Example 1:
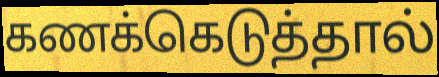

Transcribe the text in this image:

கணக்கெடுத்தால்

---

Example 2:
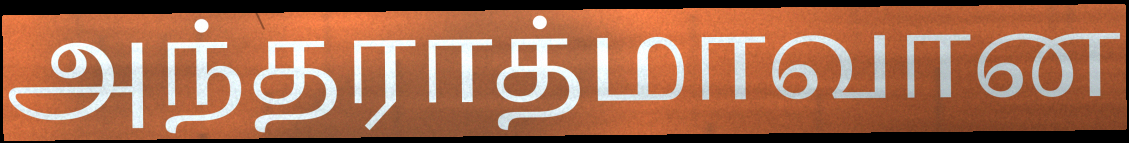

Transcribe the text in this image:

அந்தராத்மாவான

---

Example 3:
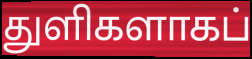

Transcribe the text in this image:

துளிகளாகப்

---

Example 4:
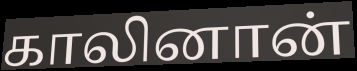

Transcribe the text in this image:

காலினான்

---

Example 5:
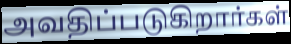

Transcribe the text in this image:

அவதிப்படுகிறார்கள்